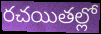
రచయితల్లో